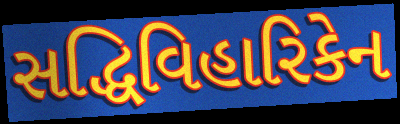
સદ્ધિવિહારિકેન